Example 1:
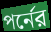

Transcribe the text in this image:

পর্নের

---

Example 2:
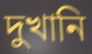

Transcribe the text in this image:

দুখানি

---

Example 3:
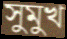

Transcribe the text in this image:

সুমুখ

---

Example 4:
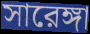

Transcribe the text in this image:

সারেঙ্গা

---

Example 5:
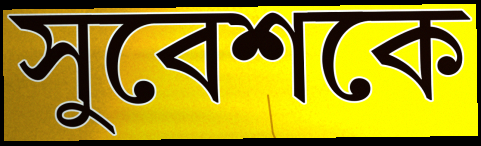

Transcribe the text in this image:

সুবেশকে